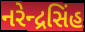
નરેન્દ્રસિંહ